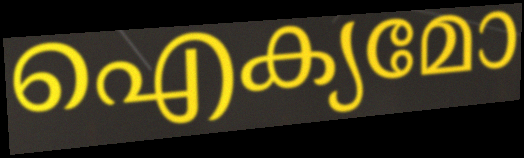
ഐക്യമോ